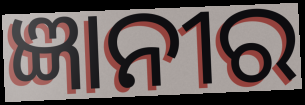
ଜ୍ଞାନୀର